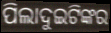
ପିଲାଦୁଇଟିଙ୍କର